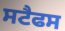
ਸਟੈਫਸ